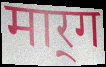
मार्ग